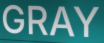
GRAY